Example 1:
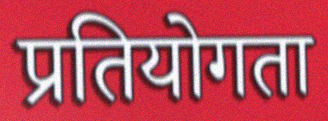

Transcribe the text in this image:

प्रतियोगता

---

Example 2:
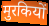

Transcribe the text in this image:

मुरकियों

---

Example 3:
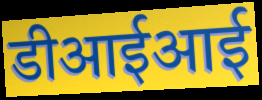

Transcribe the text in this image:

डीआईआई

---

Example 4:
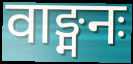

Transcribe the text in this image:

वाङ्मनः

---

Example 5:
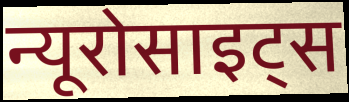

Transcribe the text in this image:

न्यूरोसाइट्स